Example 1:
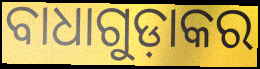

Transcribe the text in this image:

ବାଧାଗୁଡ଼ାକର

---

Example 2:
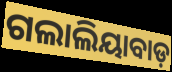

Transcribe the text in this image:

ଗଲାଲିୟାବାଡ଼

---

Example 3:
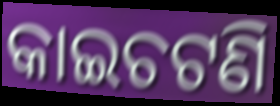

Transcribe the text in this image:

କାଇଚଟଣି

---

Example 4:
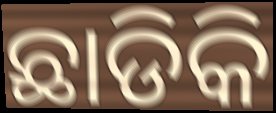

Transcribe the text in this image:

ଛାଡିକି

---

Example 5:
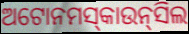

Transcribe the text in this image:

ଅଟୋନମସ୍‌କାଉନ୍‌ସିଲ